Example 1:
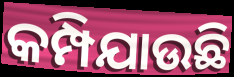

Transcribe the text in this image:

କମ୍ପିଯାଉଛି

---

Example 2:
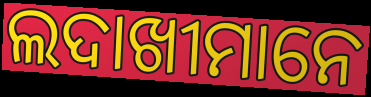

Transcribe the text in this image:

ଲଦାଖୀମାନେ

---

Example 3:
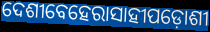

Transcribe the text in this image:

ଦେଶୀବେହେରାସାହୀପଡ଼ୋଶୀ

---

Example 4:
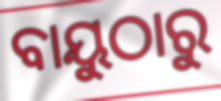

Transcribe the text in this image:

ବାୟୁଠାରୁ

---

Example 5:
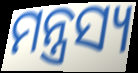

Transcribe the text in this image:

ମନ୍ତ୍ରସ୍ୟ